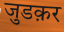
जुडक़र